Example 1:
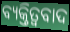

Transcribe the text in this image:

ବ୍ଯକ୍ତିତ୍ଵବାଦ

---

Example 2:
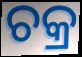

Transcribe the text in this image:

ଚକ୍ର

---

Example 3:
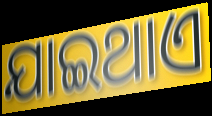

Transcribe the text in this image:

ଯାଇଥାଏ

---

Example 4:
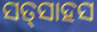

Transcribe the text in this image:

ସତ୍‍ସାହସ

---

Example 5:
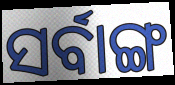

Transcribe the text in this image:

ସର୍ବାଙ୍ଗ